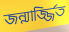
জন্মার্জ্জিত